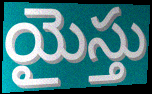
యైస్తు